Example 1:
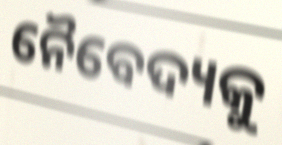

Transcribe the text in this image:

ନୈବେଦ୍ୟକୁ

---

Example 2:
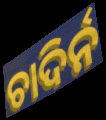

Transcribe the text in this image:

ଚାଦିର୍ନ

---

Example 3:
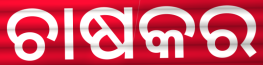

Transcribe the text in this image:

ଚାଷକର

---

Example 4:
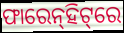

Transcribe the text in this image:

ଫାରେନ୍‌ହିଟ୍‌ରେ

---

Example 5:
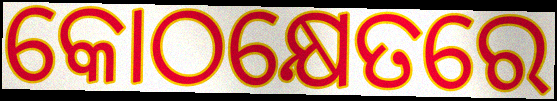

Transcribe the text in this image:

କୋଠକ୍ଷେତରେ